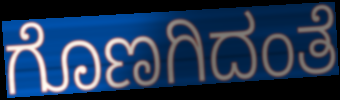
ಗೊಣಗಿದಂತೆ